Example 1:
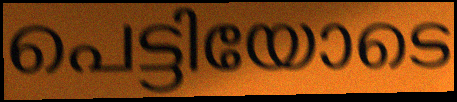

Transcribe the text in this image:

പെട്ടിയോടെ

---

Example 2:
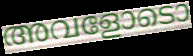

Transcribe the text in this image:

അവളോടൊ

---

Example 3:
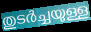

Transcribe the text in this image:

തുടർച്ചയുള്ള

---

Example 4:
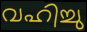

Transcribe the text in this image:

വഹിച്ചു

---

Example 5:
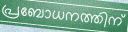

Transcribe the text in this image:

പ്രബോധനത്തിന്